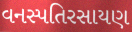
વનસ્પતિરસાયણ